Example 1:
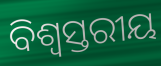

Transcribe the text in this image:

ବିଶ୍ଵସ୍ତରୀୟ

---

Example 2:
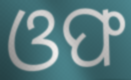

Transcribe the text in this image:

ଓଫ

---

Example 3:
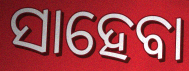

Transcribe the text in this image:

ସାହେବା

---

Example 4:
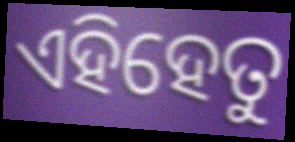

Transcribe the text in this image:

ଏହିହେତୁ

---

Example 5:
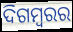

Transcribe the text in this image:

ଦିଗମ୍ୱରର